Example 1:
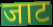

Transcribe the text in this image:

जाट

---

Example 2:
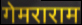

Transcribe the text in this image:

गेमराराम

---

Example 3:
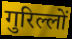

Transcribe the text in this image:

गुरिल्लों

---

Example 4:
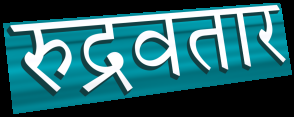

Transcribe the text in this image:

रुद्रवतार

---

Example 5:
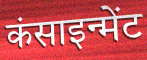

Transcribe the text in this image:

कंसाइन्मेंट